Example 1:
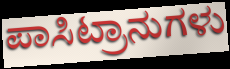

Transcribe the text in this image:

ಪಾಸಿಟ್ರಾನುಗಳು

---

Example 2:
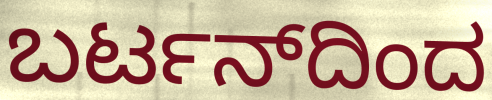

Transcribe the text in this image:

ಬರ್ಟನ್‌ದಿಂದ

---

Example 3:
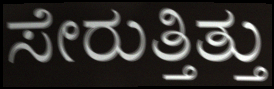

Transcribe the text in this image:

ಸೇರುತ್ತಿತ್ತು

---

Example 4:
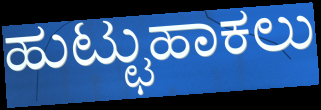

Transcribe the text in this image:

ಹುಟ್ಟುಹಾಕಲು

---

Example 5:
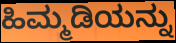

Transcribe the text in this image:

ಹಿಮ್ಮಡಿಯನ್ನು